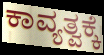
ಕಾವ್ಯತ್ವಕ್ಕೆ